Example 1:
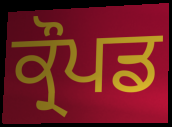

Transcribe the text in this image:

ਕ੍ਰੌਪਡ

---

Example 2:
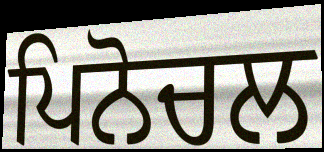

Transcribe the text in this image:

ਪਿਨੋਚਲ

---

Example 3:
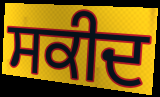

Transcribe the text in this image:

ਸਕੀਦ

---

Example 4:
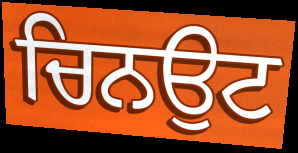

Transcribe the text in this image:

ਚਿਨਉਟ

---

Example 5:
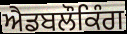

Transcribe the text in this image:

ਐਡਬਲੌਕਿੰਗ